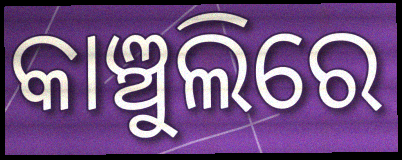
କାଞ୍ଚୁଲିରେ